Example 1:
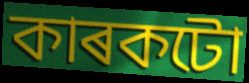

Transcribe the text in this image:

কাৰকটো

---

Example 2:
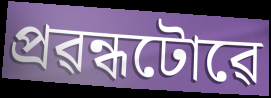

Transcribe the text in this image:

প্ৰৱন্ধটোৱে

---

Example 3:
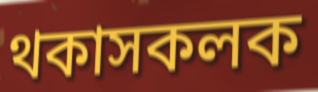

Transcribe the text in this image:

থকাসকলক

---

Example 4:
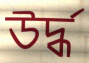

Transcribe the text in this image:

উৰ্দ্ধ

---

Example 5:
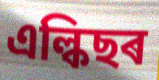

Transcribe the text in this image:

এল্কিছৰ